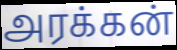
அரக்கன்